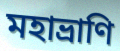
মহাভ্রাণি